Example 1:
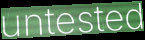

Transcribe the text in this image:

untested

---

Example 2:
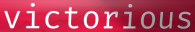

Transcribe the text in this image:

victorious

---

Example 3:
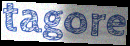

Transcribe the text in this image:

tagore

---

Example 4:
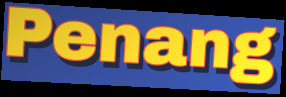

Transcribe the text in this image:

Penang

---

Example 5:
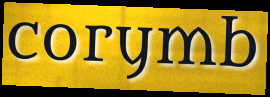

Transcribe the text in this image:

corymb